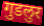
गुडलुर